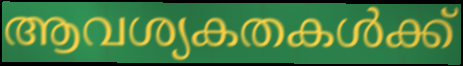
ആവശ്യകതകൾക്ക്